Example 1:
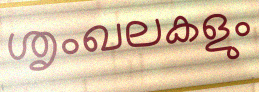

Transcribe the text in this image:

ശൃംഖലകളും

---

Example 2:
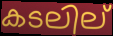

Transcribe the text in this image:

കടലില്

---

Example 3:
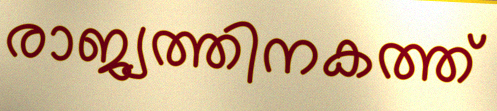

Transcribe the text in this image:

രാജ്യത്തിനകത്ത്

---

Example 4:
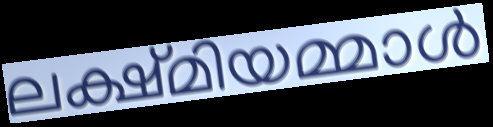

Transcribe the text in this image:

ലക്ഷ്മിയമ്മാൾ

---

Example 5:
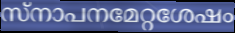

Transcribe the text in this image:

സ്നാപനമേറ്റശേഷം